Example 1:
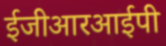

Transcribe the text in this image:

ईजीआरआईपी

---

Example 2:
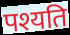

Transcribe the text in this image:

पश्यति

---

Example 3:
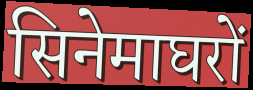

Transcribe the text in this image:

सिनेमाघरों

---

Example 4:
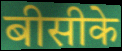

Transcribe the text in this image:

बीसीके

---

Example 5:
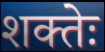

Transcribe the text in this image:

शक्तेः